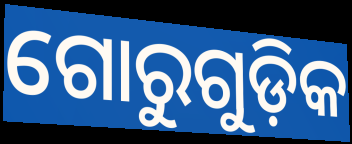
ଗୋରୁଗୁଡ଼ିକ